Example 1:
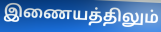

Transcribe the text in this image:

இணையத்திலும்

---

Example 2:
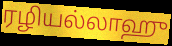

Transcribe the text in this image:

ரழியல்லாஹு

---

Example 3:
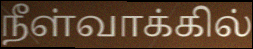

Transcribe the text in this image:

நீள்வாக்கில்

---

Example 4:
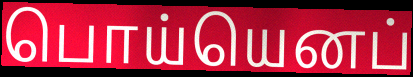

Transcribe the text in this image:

பொய்யெனப்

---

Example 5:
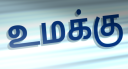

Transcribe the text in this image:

உமக்கு